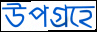
উপগ্রহে